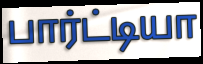
பார்ட்டியா